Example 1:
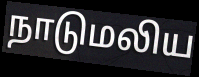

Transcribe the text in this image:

நாடுமலிய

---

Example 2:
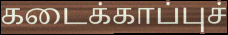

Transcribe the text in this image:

கடைக்காப்புச்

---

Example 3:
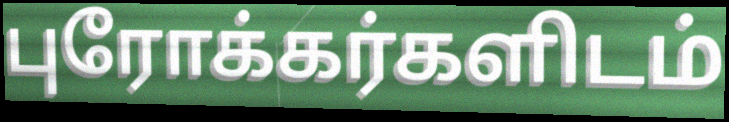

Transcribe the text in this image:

புரோக்கர்களிடம்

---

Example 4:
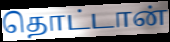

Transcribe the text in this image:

தொட்டான்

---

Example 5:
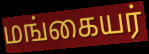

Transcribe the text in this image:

மங்கையர்